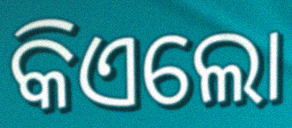
କିଏଲୋ